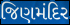
જિણમંદિર